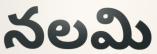
నలమి